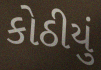
કોઠીયું